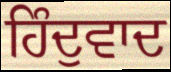
ਹਿੰਦੁਵਾਦ